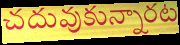
చదువుకున్నారట